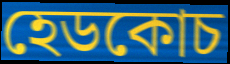
হেডকোচ